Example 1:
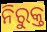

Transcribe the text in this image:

ନିରୁକ୍ତ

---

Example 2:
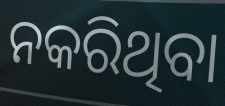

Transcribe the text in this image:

ନକରିଥିବା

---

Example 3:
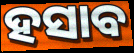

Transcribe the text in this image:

ହସାବ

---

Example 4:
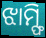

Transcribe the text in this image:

ଝାମ୍ଫି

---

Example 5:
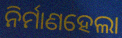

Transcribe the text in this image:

ନିର୍ମାଣହେଲା